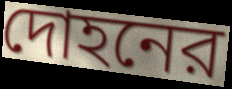
দোহনের